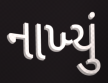
નાખ્‍યું